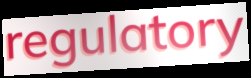
regulatory